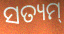
ସତ୍ୟମ୍